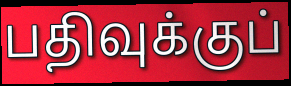
பதிவுக்குப்